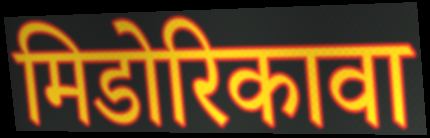
मिडोरिकावा